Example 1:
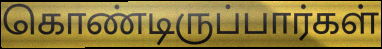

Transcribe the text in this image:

கொண்டிருப்பார்கள்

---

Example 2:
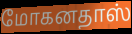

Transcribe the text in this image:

மோகனதாஸ்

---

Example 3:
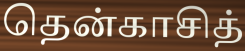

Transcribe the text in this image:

தென்காசித்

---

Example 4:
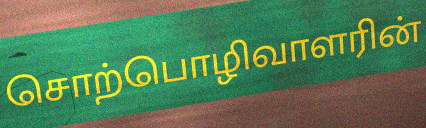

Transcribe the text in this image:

சொற்பொழிவாளரின்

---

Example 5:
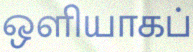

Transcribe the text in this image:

ஒளியாகப்